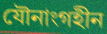
যৌনাংগহীন